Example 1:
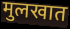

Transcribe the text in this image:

मुलखात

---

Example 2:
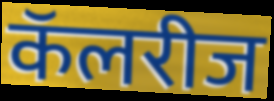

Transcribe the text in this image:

कॅलरीज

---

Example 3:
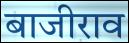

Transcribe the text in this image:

बाजीराव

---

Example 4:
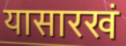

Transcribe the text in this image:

यासारखं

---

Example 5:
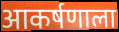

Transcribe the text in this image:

आकर्षणाला